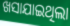
ଖସାଯାଇଥିଲା